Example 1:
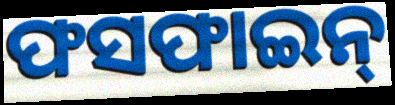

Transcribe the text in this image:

ଫସଫାଇନ୍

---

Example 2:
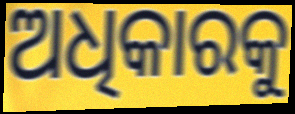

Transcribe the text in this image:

ଅଧିକାରକୁ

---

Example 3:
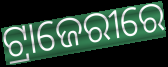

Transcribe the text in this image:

ଟ୍ରାଜେରୀରେ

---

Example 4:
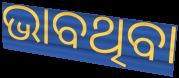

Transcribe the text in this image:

ଭାବଥିବା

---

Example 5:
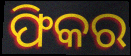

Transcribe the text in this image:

ଫିକର